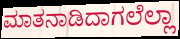
ಮಾತನಾಡಿದಾಗಲೆಲ್ಲಾ